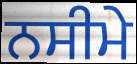
ਨਸੀਮੇ